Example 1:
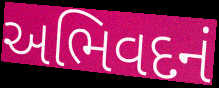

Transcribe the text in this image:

અભિવદનં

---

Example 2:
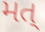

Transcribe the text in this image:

મત્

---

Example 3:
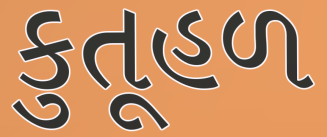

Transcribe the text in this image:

કુતૂહળ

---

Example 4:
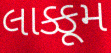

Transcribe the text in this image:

લાક્કૂમ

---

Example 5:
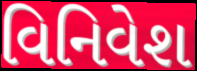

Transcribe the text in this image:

વિનિવેશ